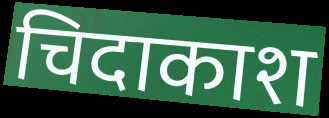
चिदाकाश